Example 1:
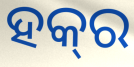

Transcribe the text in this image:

ହକ୍‌ର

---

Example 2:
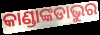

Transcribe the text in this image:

କାଣ୍ଡାଙ୍କଡାଭୁର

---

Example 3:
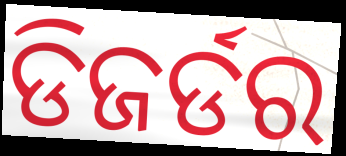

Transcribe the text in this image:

ଡିଜର୍ଡର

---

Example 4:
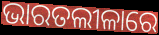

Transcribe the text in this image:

ଭାରତଲୀଳାରେ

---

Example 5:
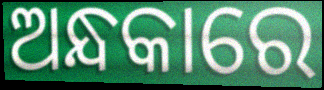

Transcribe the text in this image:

ଅନ୍ଧକାରେ